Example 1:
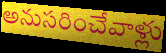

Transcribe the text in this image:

అనుసరించేవాళ్లు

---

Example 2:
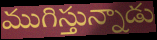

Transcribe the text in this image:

ముగిస్తున్నాడు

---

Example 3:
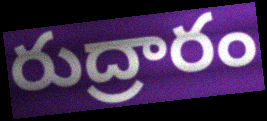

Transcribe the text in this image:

రుద్రారం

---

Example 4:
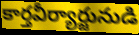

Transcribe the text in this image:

కార్తవీర్యార్జునుడి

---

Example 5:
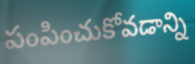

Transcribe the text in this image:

పంపించుకోవడాన్ని